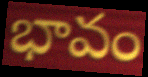
భావం